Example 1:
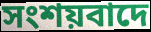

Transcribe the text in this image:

সংশয়বাদে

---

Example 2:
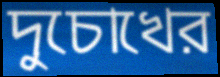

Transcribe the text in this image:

দুচোখের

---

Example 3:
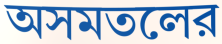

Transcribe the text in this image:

অসমতলের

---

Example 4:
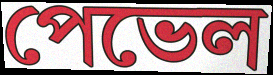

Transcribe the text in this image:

পেভেল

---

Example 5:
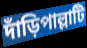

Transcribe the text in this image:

দাঁড়িপাল্লাটি